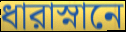
ধারাস্নানে